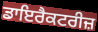
ਡਾਇਰੈਕਟਰੀਜ਼